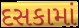
દસકામાં